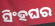
ସିଂହଘର